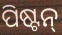
ପିଷ୍ଟନ୍